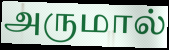
அருமால்